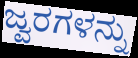
ಜ್ವರಗಳನ್ನು